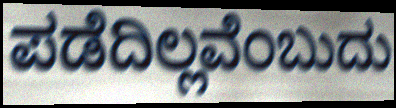
ಪಡೆದಿಲ್ಲವೆಂಬುದು